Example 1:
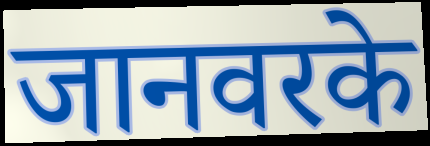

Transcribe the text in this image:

जानवरके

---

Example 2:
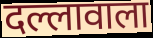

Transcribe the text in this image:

दल्लावाला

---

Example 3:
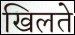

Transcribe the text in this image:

खिलते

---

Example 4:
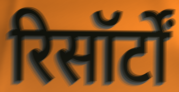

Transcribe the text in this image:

रिसॉर्टों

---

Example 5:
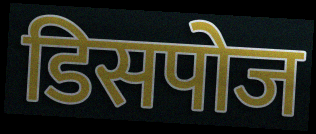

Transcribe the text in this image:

डिसपोज